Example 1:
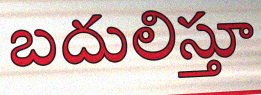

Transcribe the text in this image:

బదులిస్తూ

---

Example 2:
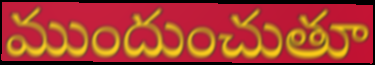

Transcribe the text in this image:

ముందుంచుతూ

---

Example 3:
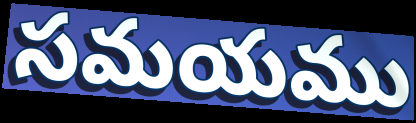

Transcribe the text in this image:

సమయము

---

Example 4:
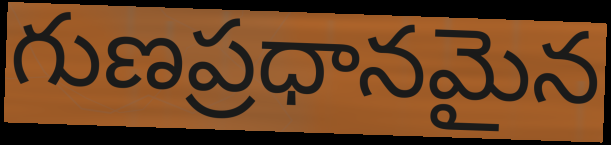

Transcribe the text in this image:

గుణప్రధానమైన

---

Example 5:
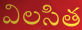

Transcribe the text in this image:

విలసిత